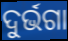
ଦୁର୍ଭଗା